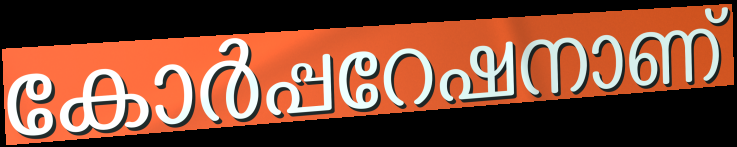
കോർപ്പറേഷനാണ്